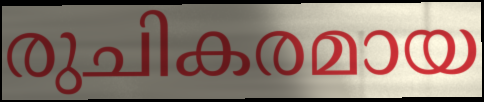
രുചികരമായ